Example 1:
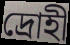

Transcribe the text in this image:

দ্ৰোহী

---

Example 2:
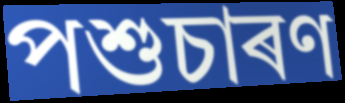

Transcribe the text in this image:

পশুচাৰণ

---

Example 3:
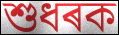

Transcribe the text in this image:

শুধৰক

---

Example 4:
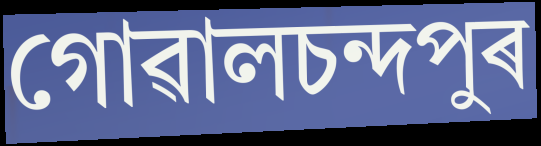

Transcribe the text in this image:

গোৱালচন্দপুৰ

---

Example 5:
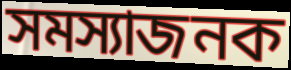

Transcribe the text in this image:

সমস্যাজনক